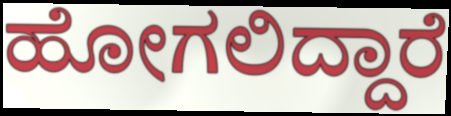
ಹೋಗಲಿದ್ದಾರೆ